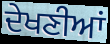
ਦੇਖਣੀਆਂ